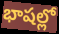
భాషల్లో